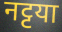
नट्टया